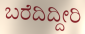
ಬರೆದಿದ್ದೀರಿ